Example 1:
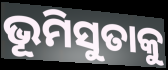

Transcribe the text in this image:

ଭୂମିସୁତାକୁ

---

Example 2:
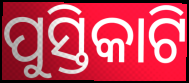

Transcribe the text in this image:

ପୁସ୍ତିକାଟି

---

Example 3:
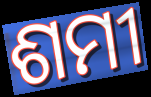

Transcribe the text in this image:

ଶମୀ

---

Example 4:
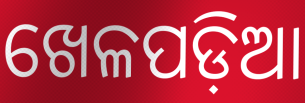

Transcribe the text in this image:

ଖେଳପଡ଼ିଆ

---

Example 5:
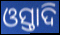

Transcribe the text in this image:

ଓସ୍ତାଦି